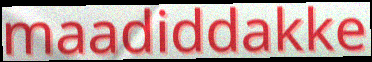
maadiddakke